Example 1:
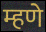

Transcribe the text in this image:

म्हणे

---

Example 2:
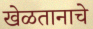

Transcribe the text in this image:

खेळतानाचे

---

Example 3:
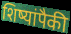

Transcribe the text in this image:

शिष्यांपैकी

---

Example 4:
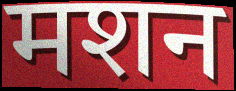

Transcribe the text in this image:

मशन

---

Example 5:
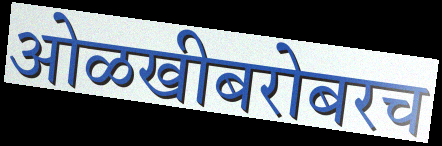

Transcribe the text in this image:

ओळखीबरोबरच